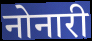
नोनारी